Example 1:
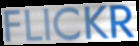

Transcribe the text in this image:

FLICKR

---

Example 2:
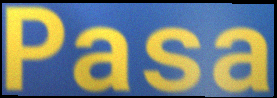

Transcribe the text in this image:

Pasa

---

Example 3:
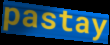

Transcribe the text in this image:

pastay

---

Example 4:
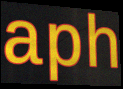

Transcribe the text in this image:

aph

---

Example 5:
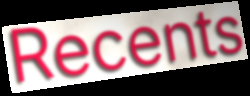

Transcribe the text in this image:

Recents